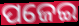
ପଜେଇ